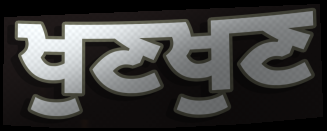
ਖੁਣਖੁਣ